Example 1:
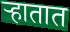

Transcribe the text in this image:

ऱ्हातात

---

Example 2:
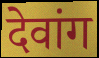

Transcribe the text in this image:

देवांग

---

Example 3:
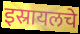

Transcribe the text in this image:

इस्रायलचे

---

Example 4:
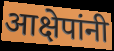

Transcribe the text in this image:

आक्षेपांनी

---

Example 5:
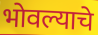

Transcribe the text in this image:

भोवल्याचे